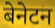
बेनेटन